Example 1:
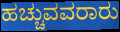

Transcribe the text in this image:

ಹಚ್ಚುವವರಾರು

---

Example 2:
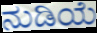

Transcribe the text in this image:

ನುಡಿಯೆ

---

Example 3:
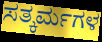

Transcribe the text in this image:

ಸತ್ಕರ್ಮಗಳ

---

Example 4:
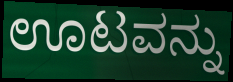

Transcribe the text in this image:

ಊಟವನ್ನು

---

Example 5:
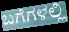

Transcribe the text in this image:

ಬಗೆಗಳಲ್ಲಿ